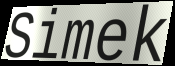
Simek